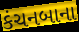
કંચનબાના